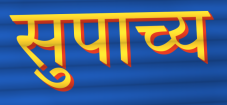
सुपाच्य